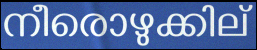
നീരൊഴുക്കില്